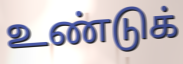
உண்டுக்